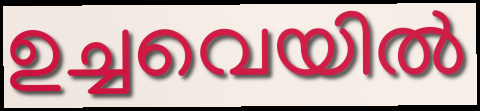
ഉച്ചവെയിൽ